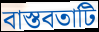
বাস্তবতাটি